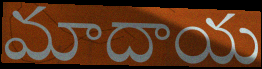
మాదాయ